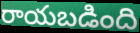
రాయబడింది